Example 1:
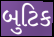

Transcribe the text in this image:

બુટિક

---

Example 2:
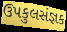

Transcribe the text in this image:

ઉપકુલસંજ્ઞક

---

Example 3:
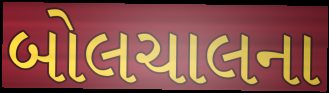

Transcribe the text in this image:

બોલચાલના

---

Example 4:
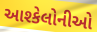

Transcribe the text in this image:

આશ્કેલોનીઓ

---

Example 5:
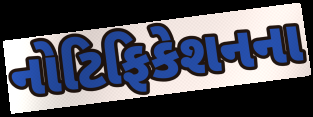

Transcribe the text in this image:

નોટિફિકેશનના